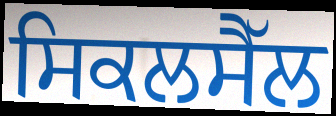
ਸਿਕਲਸੈੱਲ